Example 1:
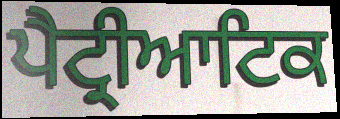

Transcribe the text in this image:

ਪੈਟ੍ਰੀਆਟਿਕ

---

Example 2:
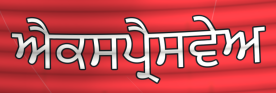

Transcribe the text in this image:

ਐਕਸਪ੍ਰੈਸਵੇਅ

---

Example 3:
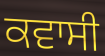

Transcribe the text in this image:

ਕਵਾਸੀ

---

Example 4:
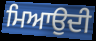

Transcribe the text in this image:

ਮਿਆਉਦੀ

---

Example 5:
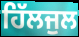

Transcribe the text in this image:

ਹਿੱਲਜੁਲ